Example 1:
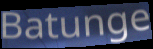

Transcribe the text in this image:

Batunge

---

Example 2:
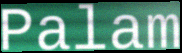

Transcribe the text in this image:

Palam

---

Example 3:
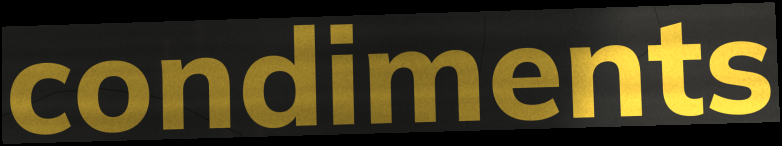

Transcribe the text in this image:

condiments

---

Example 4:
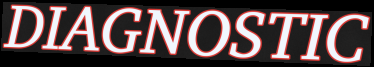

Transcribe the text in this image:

DIAGNOSTIC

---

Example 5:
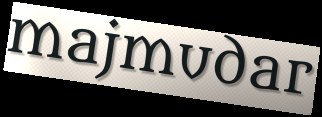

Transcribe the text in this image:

majmudar